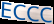
ECCC